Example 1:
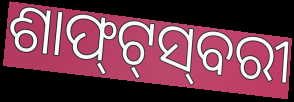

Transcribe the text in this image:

ଶାଫ୍‍ଟ୍‍ସ୍‍ବରୀ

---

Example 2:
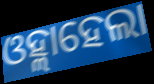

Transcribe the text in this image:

ଓହ୍ଲାହେଲା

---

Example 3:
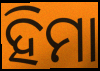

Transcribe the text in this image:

ହିମା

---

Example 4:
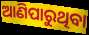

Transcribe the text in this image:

ଆଣିପାରୁଥିବା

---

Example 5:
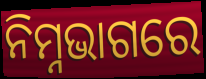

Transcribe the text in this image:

ନିମ୍ନଭାଗରେ